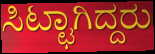
ಸಿಟ್ಟಾಗಿದ್ದರು